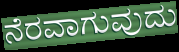
ನೆರವಾಗುವುದು